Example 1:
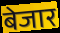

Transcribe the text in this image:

बेजार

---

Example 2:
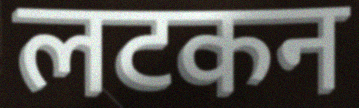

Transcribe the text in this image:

लटकन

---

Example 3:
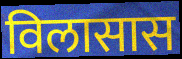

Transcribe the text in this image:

विलासास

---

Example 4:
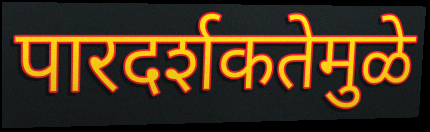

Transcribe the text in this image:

पारदर्शकतेमुळे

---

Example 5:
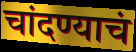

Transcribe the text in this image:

चांदण्याचं